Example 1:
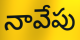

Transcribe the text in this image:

నావేపు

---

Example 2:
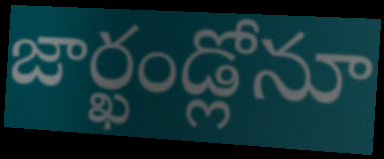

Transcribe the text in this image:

జార్ఖండ్లోనూ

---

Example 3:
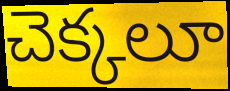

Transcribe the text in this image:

చెక్కలూ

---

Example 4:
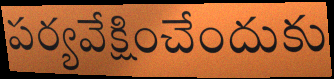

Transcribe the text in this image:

పర్యవేక్షించేందుకు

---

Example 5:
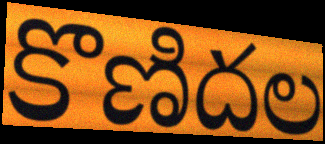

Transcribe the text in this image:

కొణిదల